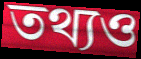
তথ্যও